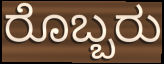
ರೊಬ್ಬರು